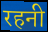
रहनी